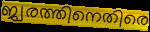
ജ്വരത്തിനെതിരെ